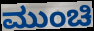
ಮುಂಚಿ